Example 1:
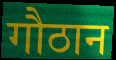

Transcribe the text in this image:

गौठान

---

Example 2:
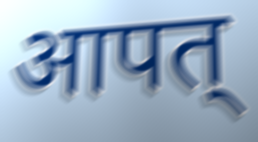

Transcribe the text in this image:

आपत्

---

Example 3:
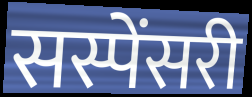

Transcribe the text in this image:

सस्पेंसरी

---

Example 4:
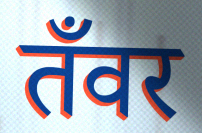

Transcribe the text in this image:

तँवर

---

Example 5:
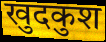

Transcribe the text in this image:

खुदकुश